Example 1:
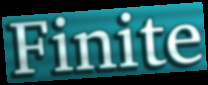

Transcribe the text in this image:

Finite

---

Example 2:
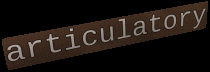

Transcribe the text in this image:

articulatory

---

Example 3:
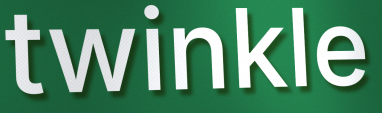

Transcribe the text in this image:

twinkle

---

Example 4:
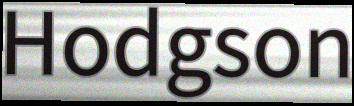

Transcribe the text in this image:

Hodgson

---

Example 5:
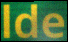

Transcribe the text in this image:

lde